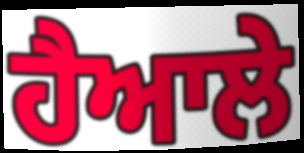
ਹੈਆਲੇ